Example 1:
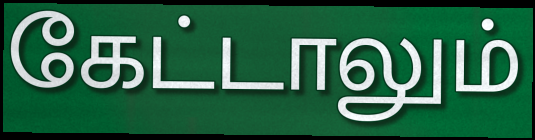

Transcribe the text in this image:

கேட்டாலும்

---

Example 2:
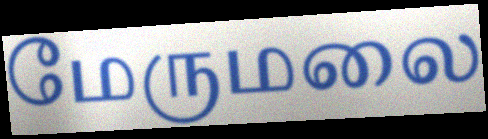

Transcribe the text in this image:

மேருமலை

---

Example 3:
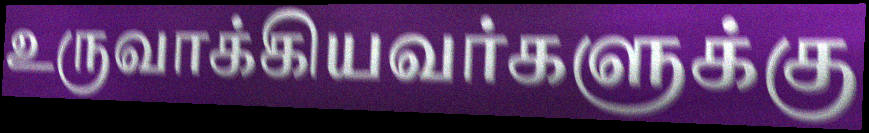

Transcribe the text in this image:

உருவாக்கியவர்களுக்கு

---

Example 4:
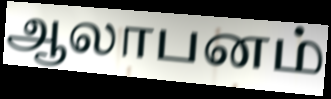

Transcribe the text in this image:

ஆலாபனம்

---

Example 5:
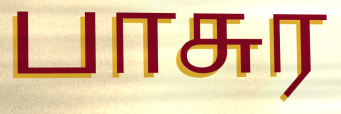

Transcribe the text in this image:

பாசுர